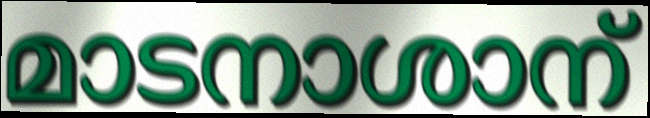
മാടനാശാന്